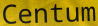
Centum